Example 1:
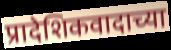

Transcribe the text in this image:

प्रादेशिकवादाच्या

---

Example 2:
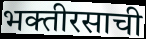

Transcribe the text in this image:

भक्तीरसाची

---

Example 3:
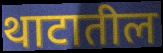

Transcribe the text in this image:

थाटातील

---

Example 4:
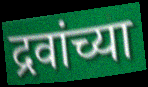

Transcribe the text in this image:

द्रवांच्या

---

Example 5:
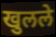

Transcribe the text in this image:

खुलले